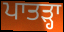
ਪਾਤੜ੍ਹਾ